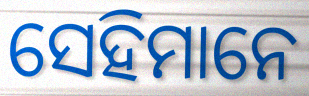
ସେହିମାନେ